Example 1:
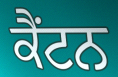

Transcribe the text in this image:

ਕੈਂਟਨ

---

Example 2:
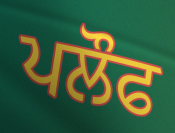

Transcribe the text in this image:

ਪਲੌਫ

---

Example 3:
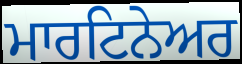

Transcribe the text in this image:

ਮਾਰਟਿਨੇਅਰ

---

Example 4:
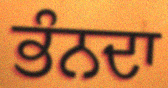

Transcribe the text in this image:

ਭੰਨਦਾ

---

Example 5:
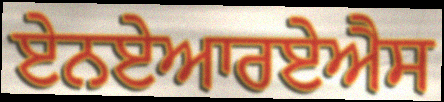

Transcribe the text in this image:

ਏਨਏਆਰਏਐਸ